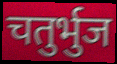
चतुर्भुज